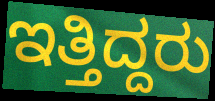
ಇತ್ತಿದ್ದರು